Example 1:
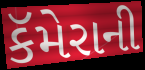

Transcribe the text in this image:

કૅમેરાની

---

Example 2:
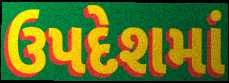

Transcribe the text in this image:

ઉપદેશમાં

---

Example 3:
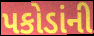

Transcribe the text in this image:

પકોડાંની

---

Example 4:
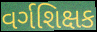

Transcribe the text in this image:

વર્ગશિક્ષક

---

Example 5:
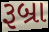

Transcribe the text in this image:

રૂબ્રા